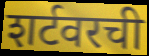
शर्टवरची